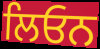
ਲਿਓਨ